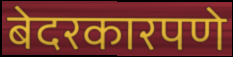
बेदरकारपणे